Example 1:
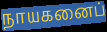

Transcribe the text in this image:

நாயகனைப்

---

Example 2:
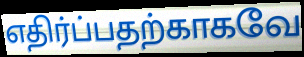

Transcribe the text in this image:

எதிர்ப்பதற்காகவே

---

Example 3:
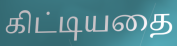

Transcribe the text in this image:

கிட்டியதை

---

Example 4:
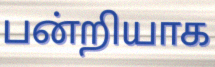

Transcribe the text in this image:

பன்றியாக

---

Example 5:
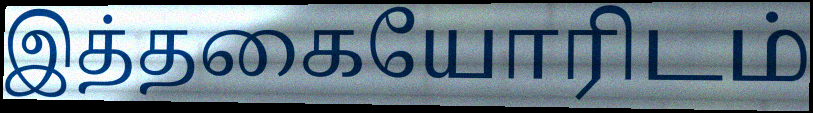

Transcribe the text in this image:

இத்தகையோரிடம்